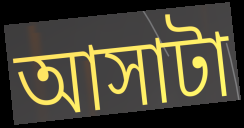
আসাটা